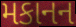
મકાનન